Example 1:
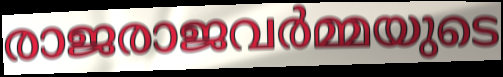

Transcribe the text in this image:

രാജരാജവർമ്മയുടെ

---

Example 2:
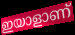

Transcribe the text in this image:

ഇയാളാണ്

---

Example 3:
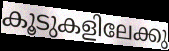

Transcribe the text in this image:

കൂടുകളിലേക്കു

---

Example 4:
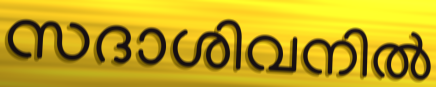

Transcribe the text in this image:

സദാശിവനിൽ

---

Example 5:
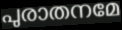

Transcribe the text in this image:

പുരാതനമേ